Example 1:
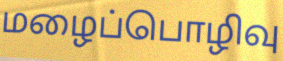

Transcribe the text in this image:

மழைப்பொழிவு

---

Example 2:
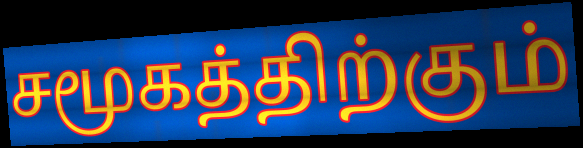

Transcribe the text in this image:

சமூகத்திற்கும்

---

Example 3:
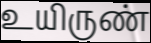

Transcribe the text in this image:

உயிருண்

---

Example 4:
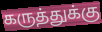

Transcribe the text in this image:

கருத்துக்கு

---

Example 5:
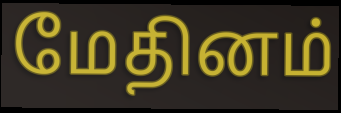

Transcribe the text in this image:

மேதினம்